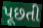
પૂછતી